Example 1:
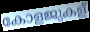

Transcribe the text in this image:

കോളജുകള്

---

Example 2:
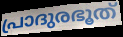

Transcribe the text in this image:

പ്രാദുരഭൂത്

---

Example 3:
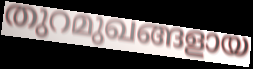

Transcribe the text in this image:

തുറമുഖങ്ങളായ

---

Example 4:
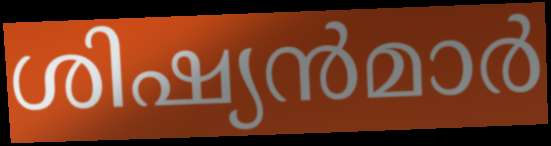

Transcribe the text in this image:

ശിഷ്യൻമാർ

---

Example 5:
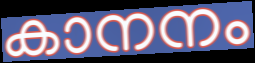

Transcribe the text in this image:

കാനനം